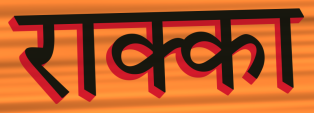
राक्का